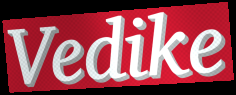
Vedike